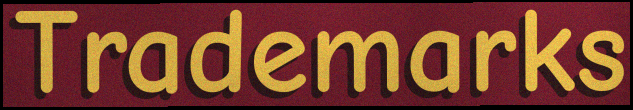
Trademarks